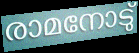
രാമനോടു്